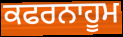
ਕਫਰਨਾਹੂਮ